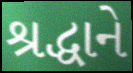
શ્રદ્ધાને